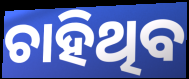
ଚାହିଥିବ